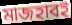
মাজহাবই